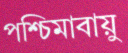
পশ্চিমাবায়ু